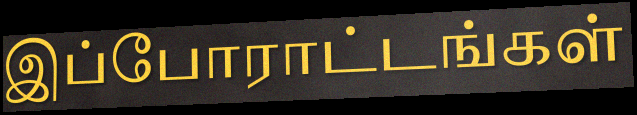
இப்போராட்டங்கள்